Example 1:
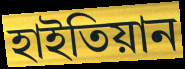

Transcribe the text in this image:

হাইতিয়ান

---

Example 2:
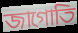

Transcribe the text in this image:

জাগোতি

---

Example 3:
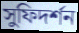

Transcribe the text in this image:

সুফিদর্শন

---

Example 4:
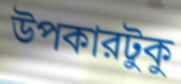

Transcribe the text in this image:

উপকারটুকু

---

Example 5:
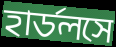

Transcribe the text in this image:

হার্ডলসে